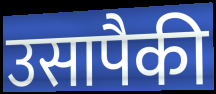
उसापैकी